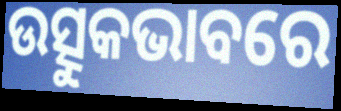
ଉତ୍ସୁକଭାବରେ